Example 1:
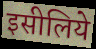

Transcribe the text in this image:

इसीलिये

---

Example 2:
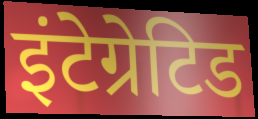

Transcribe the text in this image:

इंटेग्रेटिड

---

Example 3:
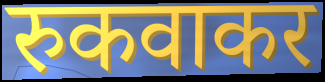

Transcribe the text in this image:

रुकवाकर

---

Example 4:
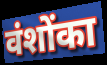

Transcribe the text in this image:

वंशोंका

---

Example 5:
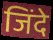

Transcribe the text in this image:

जिंदे